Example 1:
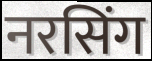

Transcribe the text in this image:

नरसिंग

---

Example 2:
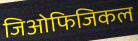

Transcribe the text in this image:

जिओफिजिकल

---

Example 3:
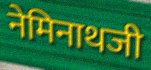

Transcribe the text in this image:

नेमिनाथजी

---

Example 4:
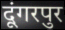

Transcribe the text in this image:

दूंगरपुर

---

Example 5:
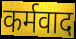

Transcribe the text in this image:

कर्मवाद